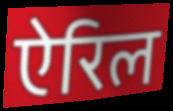
ऐरिल